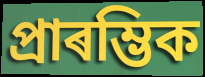
প্ৰাৰম্ভিক